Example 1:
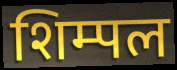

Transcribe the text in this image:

शिम्पल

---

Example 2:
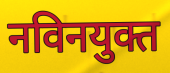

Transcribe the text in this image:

नविनयुक्त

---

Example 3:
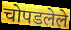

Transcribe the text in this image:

चोपडलेले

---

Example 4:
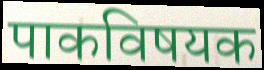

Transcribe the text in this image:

पाकविषयक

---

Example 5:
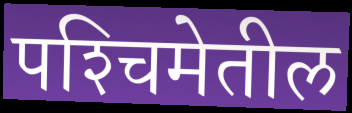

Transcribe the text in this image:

पश्चिमेतील